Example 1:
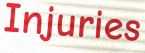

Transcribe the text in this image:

Injuries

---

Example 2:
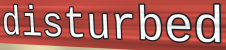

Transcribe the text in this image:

disturbed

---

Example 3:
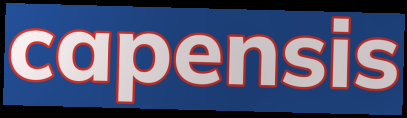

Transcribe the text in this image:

capensis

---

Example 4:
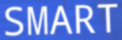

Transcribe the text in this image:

SMART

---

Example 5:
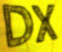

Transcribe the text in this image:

DX